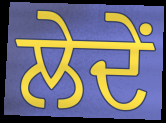
ਲੇਦੇਂ